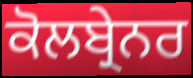
ਕੋਲਬ੍ਰੇਨਰ